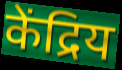
केंद्रिय